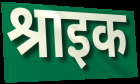
श्राइक